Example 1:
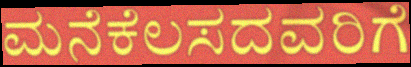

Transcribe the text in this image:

ಮನೆಕೆಲಸದವರಿಗೆ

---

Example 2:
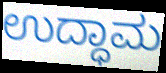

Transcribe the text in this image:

ಉದ್ಧಾಮ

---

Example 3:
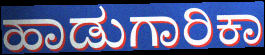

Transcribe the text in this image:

ಹಾಡುಗಾರಿಕಾ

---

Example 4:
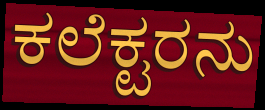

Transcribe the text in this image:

ಕಲೆಕ್ಟರನು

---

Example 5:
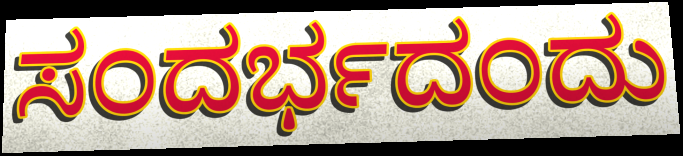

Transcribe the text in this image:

ಸಂದರ್ಭದಂದು